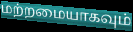
மற்றமையாகவும்